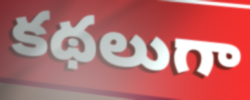
కథలుగా